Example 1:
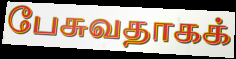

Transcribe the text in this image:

பேசுவதாகக்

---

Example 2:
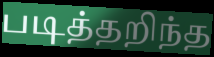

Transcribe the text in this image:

படித்தறிந்த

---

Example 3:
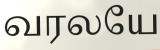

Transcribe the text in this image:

வரலயே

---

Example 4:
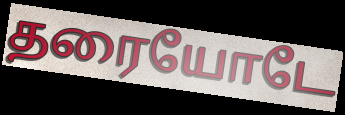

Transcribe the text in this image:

தரையோடே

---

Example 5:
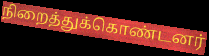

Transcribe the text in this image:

நிறைத்துக்கொண்டனர்